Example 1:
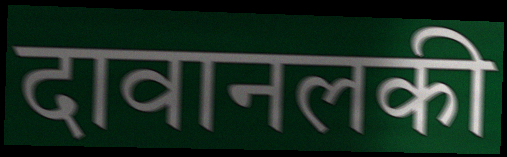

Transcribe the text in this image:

दावानलकी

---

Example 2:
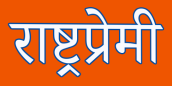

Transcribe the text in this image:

राष्ट्रप्रेमी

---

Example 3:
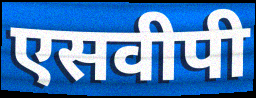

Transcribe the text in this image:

एसवीपी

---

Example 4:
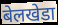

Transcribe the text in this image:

बेलखेडा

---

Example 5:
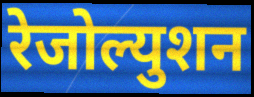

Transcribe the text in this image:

रेजोल्युशन